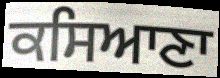
ਕਸਿਆਣਾ